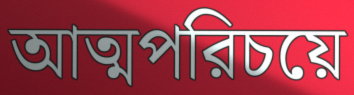
আত্মপরিচয়ে